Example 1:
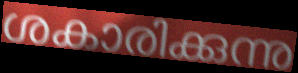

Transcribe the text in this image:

ശകാരിക്കുന്നു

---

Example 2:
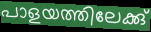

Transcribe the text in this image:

പാളയത്തിലേക്കു്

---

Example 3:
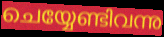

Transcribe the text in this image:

ചെയ്യേണ്ടിവന്നു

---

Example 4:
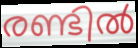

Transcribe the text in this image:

രണ്ടിൽ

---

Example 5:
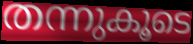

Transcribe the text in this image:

തന്നുകൂടെ